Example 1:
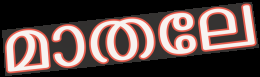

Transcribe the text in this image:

മാതലേ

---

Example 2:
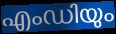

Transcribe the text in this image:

എംഡിയും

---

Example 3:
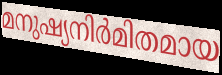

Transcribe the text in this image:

മനുഷ്യനിർമിതമായ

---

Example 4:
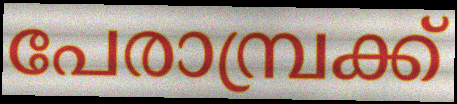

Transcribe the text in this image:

പേരാമ്പ്രക്ക്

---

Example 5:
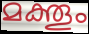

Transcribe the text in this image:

മക്തൂം